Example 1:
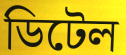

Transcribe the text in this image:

ডিটেল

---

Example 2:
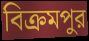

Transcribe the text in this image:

বিক্রমপুর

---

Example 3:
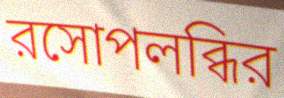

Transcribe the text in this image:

রসোপলব্ধির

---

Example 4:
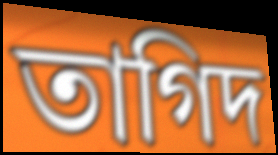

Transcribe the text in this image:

তাগিদ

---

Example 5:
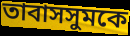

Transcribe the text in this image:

তাবাসসুমকে